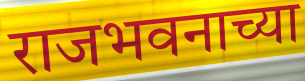
राजभवनाच्या